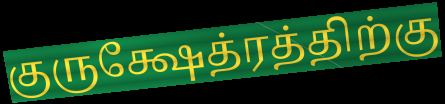
குருக்ஷேத்ரத்திற்கு